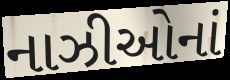
નાઝીઓનાં